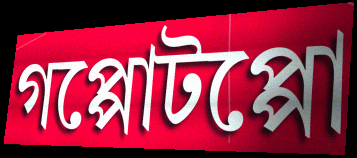
গপ্পোটপ্পো